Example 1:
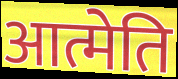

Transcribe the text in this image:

आत्मेति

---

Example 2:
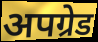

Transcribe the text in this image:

अपग्रेड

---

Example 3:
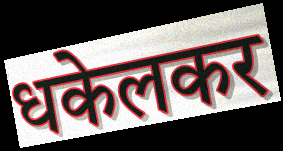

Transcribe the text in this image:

धकेलकर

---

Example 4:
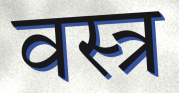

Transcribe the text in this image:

वस्‍त्र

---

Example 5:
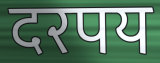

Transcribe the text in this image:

दरपय